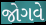
જોગવે